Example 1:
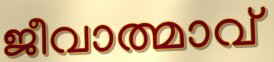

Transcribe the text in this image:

ജീവാത്മാവ്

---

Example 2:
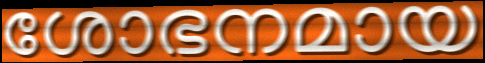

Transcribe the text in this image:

ശോഭനമായ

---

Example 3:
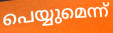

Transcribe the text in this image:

പെയ്യുമെന്ന്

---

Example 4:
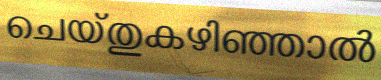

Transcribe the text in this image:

ചെയ്തുകഴിഞ്ഞാൽ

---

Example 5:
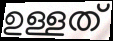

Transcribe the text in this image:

ഉള്ളത്